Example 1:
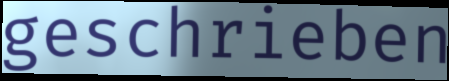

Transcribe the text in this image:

geschrieben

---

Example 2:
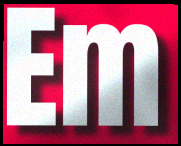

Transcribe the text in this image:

Em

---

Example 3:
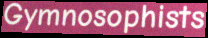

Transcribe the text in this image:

Gymnosophists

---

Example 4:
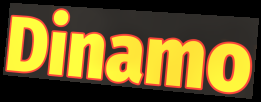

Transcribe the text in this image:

Dinamo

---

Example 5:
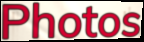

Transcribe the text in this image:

Photos